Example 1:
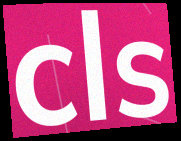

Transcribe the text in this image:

cls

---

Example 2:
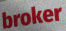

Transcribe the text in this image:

broker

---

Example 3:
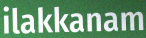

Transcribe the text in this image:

ilakkanam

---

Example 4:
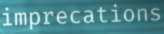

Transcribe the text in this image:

imprecations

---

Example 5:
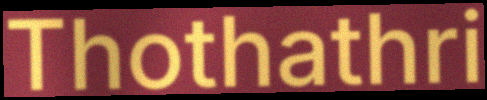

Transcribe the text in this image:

Thothathri